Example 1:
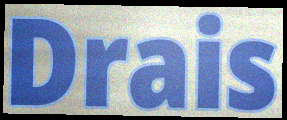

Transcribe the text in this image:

Drais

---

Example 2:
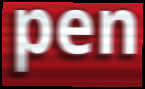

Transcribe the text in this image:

pen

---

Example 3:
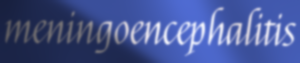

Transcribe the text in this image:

meningoencephalitis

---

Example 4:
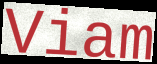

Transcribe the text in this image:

Viam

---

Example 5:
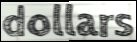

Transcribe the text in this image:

dollars